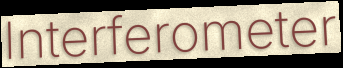
Interferometer